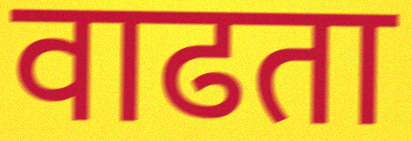
वाढता